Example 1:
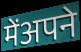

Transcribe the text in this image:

मेंअपने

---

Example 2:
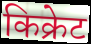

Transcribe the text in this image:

किक्रेट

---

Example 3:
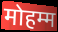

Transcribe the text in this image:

मोहम्म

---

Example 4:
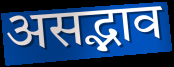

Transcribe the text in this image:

असद्भाव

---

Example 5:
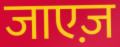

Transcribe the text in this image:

जाएज़